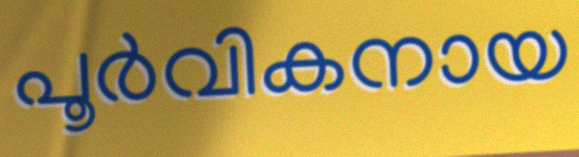
പൂർവികനായ